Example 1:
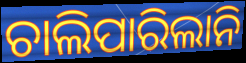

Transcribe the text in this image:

ଚାଲିପାରିଲାନି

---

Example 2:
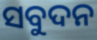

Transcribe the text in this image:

ସବୁଦନ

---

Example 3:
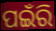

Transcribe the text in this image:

ପଇଁରି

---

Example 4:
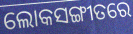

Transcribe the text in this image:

ଲୋକସଙ୍ଗୀତରେ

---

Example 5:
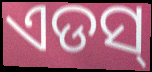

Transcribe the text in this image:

ଏଡସ୍